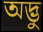
অদ্ভু